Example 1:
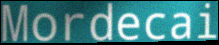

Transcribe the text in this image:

Mordecai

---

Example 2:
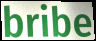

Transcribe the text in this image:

bribe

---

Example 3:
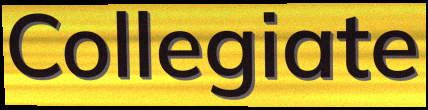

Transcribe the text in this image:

Collegiate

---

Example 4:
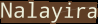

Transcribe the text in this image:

Nalayira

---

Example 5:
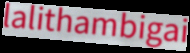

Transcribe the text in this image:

lalithambigai